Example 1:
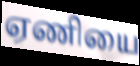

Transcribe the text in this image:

ஏணியை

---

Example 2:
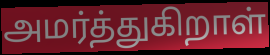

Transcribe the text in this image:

அமர்த்துகிறாள்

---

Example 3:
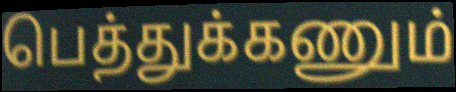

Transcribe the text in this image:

பெத்துக்கணும்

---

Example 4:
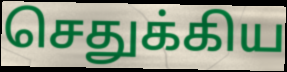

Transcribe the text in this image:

செதுக்கிய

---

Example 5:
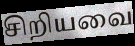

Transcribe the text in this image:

சிறியவை